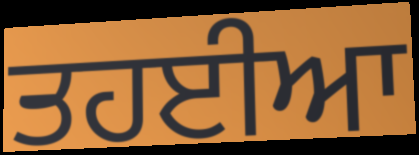
ਤਹਈਆ